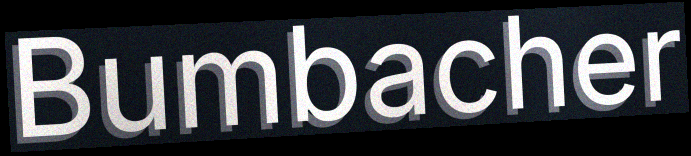
Bumbacher